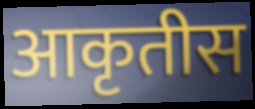
आकृतीस